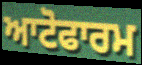
ਆਟੋਫਾਰਮ